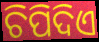
ଚିପିଦିଏ